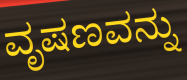
ವೃಷಣವನ್ನು